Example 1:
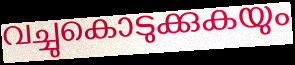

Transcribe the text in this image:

വച്ചുകൊടുക്കുകയും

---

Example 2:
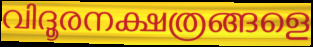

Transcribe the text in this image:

വിദൂരനക്ഷത്രങ്ങളെ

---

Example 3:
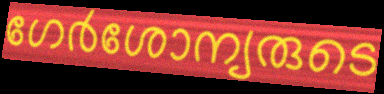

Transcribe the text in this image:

ഗേർശോന്യരുടെ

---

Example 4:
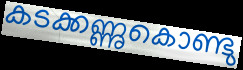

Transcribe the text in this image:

കടക്കണ്ണുകൊണ്ടു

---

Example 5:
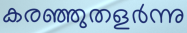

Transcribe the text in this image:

കരഞ്ഞുതളർന്നു